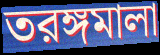
তরঙ্গমালা